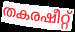
തകരഷീറ്റ്